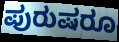
ಪುರುಷರೂ